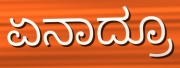
ಏನಾದ್ರೂ